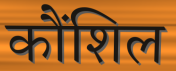
कौंशिल